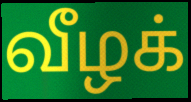
வீழக்